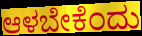
ಆಳಬೇಕೆಂದು